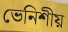
ভেনিশীয়